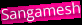
Sangamesh